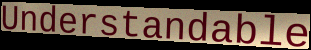
Understandable